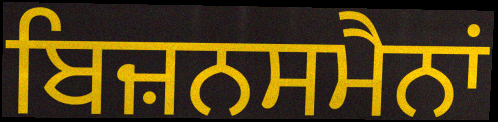
ਬਿਜ਼ਨਸਮੈਨਾਂ